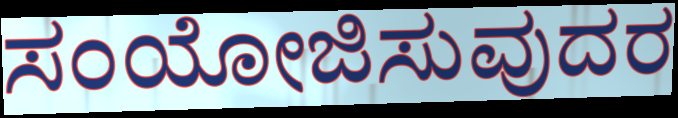
ಸಂಯೋಜಿಸುವುದರ